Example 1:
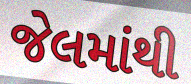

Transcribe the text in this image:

જેલમાંથી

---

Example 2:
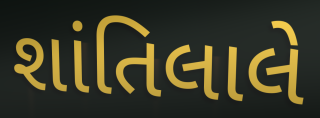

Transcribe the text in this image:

શાંતિલાલે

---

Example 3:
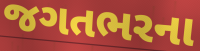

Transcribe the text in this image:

જગતભરના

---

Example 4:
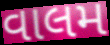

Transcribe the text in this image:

વાલમ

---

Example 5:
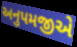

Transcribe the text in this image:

અનુપમજીએ